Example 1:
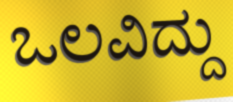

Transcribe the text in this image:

ಒಲವಿದ್ದು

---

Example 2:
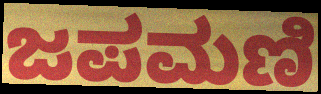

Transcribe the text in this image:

ಜಪಮಣಿ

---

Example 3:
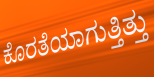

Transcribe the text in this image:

ಕೊರತೆಯಾಗುತ್ತಿತ್ತು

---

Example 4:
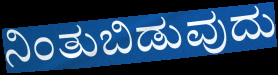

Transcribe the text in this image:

ನಿಂತುಬಿಡುವುದು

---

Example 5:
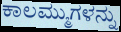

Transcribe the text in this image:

ಕಾಲಮ್ಮುಗಳನ್ನು